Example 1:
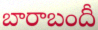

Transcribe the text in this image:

బారాబందీ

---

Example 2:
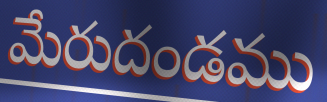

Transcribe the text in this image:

మేరుదండము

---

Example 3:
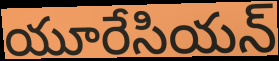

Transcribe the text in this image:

యూరేసియన్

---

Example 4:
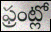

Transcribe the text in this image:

ఫ్రంట్లో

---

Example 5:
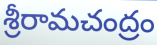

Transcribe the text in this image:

శ్రీరామచంద్రం